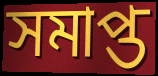
সমাপ্ত